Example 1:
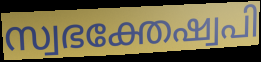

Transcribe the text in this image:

സ്വഭക്തേഷ്വപി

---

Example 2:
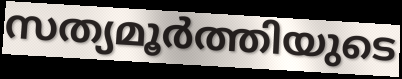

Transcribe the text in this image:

സത്യമൂർത്തിയുടെ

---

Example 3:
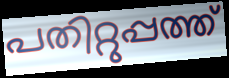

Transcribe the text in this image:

പതിറ്റുപ്പത്ത്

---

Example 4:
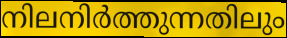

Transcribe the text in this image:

നിലനിർത്തുന്നതിലും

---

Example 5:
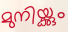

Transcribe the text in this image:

മുനിയ്ക്കും